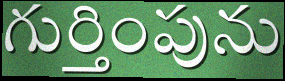
గుర్తింపును